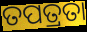
ତପତ୍ରତା